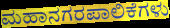
ಮಹಾನಗರಪಾಲಿಕೆಗಳು